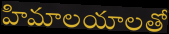
హిమాలయాలతో